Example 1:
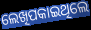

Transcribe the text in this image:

ଲେଖିପକାଇଥିଲେ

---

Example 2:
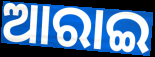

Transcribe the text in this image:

ଆରାଇ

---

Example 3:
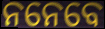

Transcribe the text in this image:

ନନେବେ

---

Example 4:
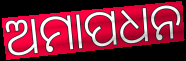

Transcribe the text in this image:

ଅମାପଧନ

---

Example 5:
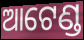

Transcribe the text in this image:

ଆଟେଣ୍ଡ